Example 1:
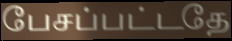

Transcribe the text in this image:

பேசப்பட்டதே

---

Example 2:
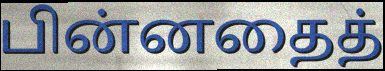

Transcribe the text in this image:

பின்னதைத்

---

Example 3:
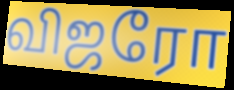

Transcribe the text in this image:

விஜரோ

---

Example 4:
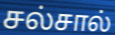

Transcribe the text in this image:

சல்சால்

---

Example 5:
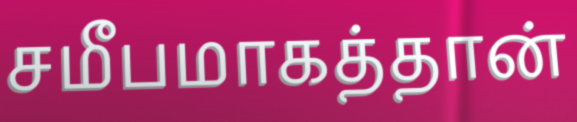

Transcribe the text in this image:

சமீபமாகத்தான்